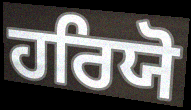
ਹਰਿਯੋ